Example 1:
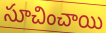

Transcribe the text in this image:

సూచించాయి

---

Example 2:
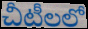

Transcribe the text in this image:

చీటీలలో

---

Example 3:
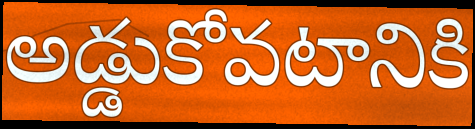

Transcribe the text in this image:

అడ్డుకోవటానికి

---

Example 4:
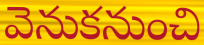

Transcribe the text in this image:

వెనుకనుంచి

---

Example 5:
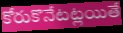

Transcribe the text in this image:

కోరుకొనేటట్లయితే